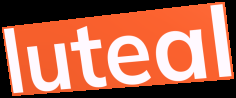
luteal